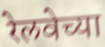
रेलवेच्या